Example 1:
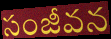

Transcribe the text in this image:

సంజీవన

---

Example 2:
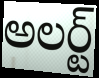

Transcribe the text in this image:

అలర్ట్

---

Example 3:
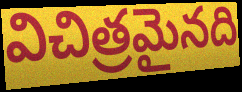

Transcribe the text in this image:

విచిత్రమైనది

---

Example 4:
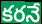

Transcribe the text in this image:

కరనే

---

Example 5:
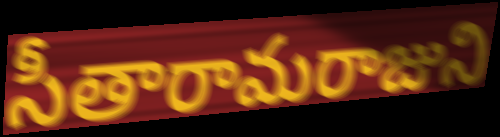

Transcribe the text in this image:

సీతారామరాజుని